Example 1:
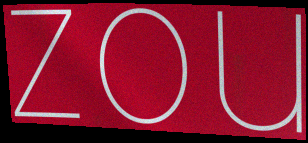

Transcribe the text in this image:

zou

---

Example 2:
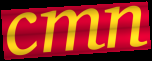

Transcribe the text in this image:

cmn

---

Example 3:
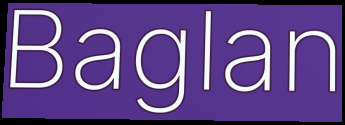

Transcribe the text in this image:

Baglan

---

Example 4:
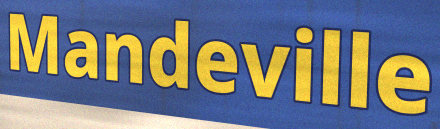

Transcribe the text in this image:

Mandeville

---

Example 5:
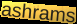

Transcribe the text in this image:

ashrams